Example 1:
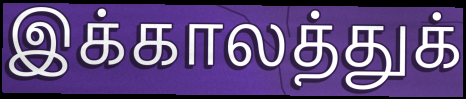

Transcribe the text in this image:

இக்காலத்துக்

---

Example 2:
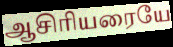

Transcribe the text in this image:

ஆசிரியரையே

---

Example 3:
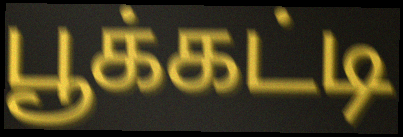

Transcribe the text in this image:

பூக்கட்டி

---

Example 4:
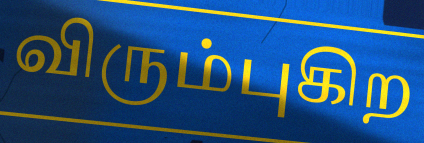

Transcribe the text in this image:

விரும்புகிற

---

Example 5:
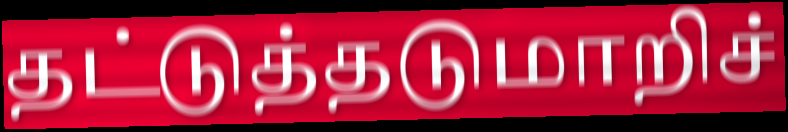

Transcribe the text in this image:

தட்டுத்தடுமாறிச்